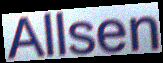
Allsen